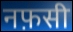
नफ़सी